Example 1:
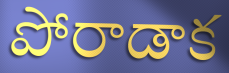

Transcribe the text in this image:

పోరాడాక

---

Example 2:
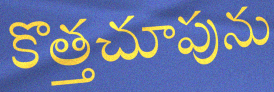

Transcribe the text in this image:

కొత్తచూపును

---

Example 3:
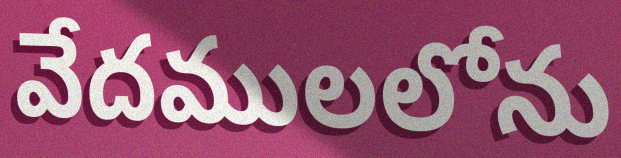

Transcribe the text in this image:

వేదములలోను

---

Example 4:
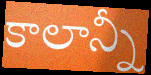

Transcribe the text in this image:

కాలాన్నీ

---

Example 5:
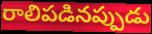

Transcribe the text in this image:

రాలిపడినప్పుడు